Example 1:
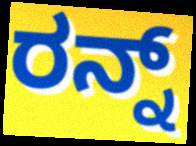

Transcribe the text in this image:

ರನ್ನ್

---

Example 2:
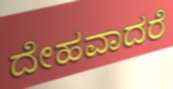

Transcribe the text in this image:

ದೇಹವಾದರೆ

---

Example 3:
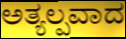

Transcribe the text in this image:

ಅತ್ಯಲ್ಪವಾದ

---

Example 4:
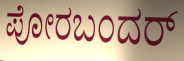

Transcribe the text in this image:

ಪೋರಬಂದರ್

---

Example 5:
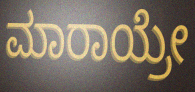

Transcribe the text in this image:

ಮಾರಾಯ್ರೇ